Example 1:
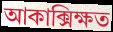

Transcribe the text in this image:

আকাক্সিক্ষত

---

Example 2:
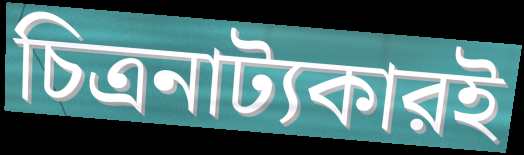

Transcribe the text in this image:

চিত্রনাট্যকারই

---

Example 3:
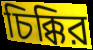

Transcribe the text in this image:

চিক্কির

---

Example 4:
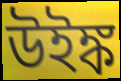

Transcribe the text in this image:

উইঙ্ক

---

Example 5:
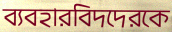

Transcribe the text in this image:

ব্যবহারবিদদেরকে